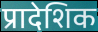
प्रादेशिक